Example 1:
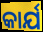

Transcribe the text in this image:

କାର୍ଯ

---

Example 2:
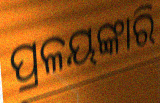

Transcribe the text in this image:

ପ୍ରଳୟଙ୍କାରି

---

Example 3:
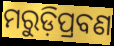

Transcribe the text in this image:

ମରୁଡ଼ିପ୍ରବଣ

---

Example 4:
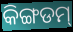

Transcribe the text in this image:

କିଙ୍ଗଡମ୍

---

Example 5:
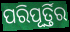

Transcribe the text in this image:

ପରିପୂର୍ତ୍ତିର